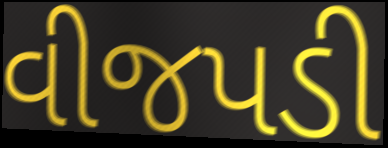
વીજપડી